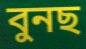
বুনছ